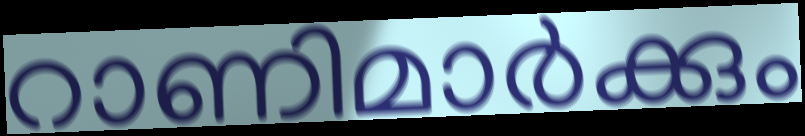
റാണിമാർക്കും